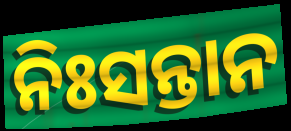
ନିଃସନ୍ତାନ